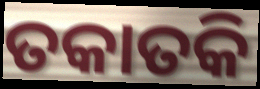
ତକାତକି